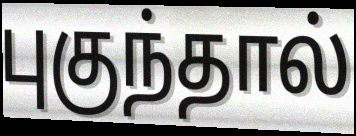
புகுந்தால்